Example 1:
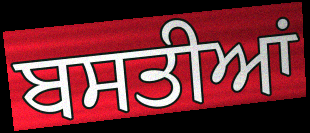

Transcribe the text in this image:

ਬਸਤੀਆਂ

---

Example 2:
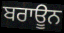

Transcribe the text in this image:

ਬਰਾਊਨ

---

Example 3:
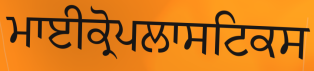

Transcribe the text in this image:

ਮਾਈਕ੍ਰੋਪਲਾਸਟਿਕਸ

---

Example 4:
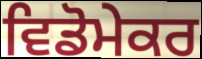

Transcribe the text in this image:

ਵਿਡੋਮੇਕਰ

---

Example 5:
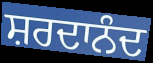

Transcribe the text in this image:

ਸ਼ਰਦਾਨੰਦ